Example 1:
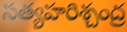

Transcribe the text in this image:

సత్యహరిశ్చంద్ర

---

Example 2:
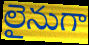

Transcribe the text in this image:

లైనుగా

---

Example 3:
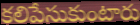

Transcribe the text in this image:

కలిపేసుకుంటారు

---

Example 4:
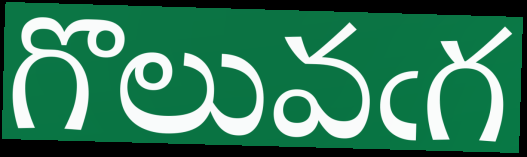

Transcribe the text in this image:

గొలువఁగ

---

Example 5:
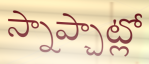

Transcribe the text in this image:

స్నాప్చాట్లో